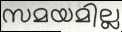
സമയമില്ല